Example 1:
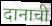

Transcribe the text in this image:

दानाची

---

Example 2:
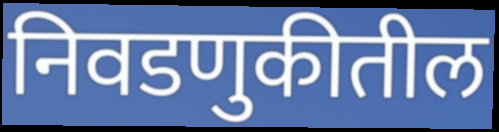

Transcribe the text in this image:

निवडणुकीतील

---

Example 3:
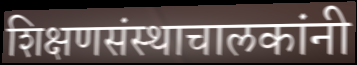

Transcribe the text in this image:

शिक्षणसंस्थाचालकांनी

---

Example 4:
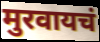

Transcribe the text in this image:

मुरवायचं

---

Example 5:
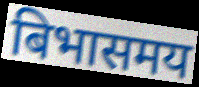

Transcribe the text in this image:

बिभासमय